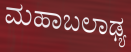
ಮಹಾಬಲಾಢ್ಯ